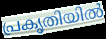
പ്രകൃതിയിൽ